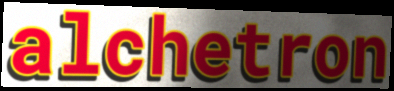
alchetron